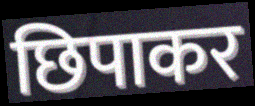
छिपाकर